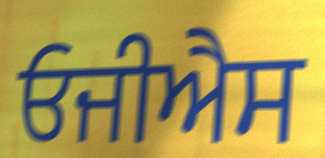
ਓਜੀਐਸ